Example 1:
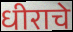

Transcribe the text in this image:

धीराचे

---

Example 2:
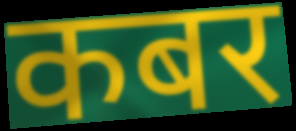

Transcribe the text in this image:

कबर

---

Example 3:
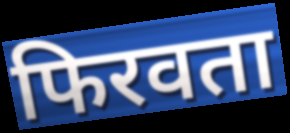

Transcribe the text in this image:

फिरवता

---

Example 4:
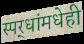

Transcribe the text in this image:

स्पर्धांमधेही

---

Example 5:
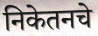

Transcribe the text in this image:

निकेतनचे